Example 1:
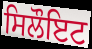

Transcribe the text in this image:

ਸਿਲੌਇਟ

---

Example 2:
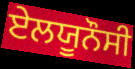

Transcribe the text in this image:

ਏਲਯੂਨੌਸੀ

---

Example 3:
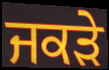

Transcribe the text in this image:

ਜਕੜੇ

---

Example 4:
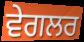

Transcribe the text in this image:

ਵੇਗਲਰ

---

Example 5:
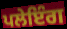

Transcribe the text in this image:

ਪਲੇਇੰਗ